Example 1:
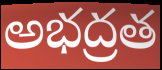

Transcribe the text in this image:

అభద్రత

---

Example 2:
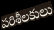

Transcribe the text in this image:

పరిశీలకులు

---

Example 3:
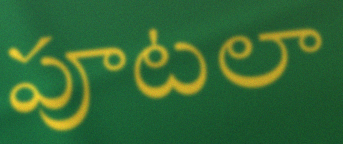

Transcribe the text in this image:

పూటలా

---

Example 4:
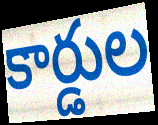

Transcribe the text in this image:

కార్డుల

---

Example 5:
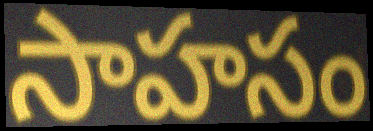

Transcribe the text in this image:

సాహసం